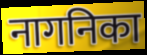
नागनिका